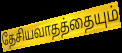
தேசியவாதத்தையும்